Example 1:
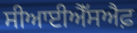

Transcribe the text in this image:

ਸੀਆਈਐੱਸਐਫ਼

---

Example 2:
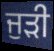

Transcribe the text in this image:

ਜੁੜੀ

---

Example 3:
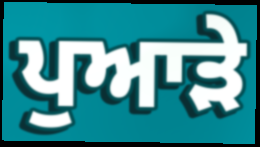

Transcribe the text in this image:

ਪੁਆੜੇ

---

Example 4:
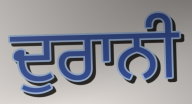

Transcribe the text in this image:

ਦੁਰਾਨੀ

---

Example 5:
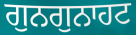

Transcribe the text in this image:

ਗੁਨਗੁਨਾਹਟ